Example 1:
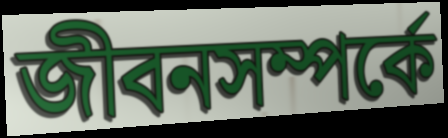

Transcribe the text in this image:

জীবনসম্পর্কে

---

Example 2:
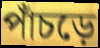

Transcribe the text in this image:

পাঁচড়ে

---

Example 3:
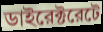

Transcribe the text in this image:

ডাইরেক্টরেটে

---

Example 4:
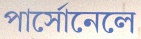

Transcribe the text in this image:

পার্সোনেলে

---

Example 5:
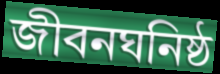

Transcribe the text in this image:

জীবনঘনিষ্ঠ